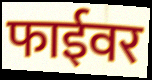
फाईवर